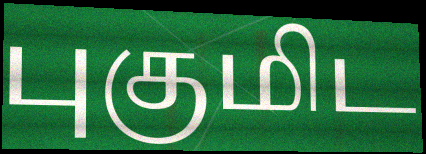
புகுமிட